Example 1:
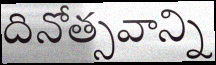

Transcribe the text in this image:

దినోత్సవాన్ని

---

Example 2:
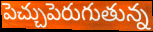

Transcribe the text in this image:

పెచ్చుపెరుగుతున్న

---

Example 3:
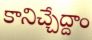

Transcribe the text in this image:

కానిచ్చేద్దాం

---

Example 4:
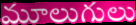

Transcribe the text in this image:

మూలుగులు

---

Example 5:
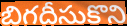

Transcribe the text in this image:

బిగదీసుకొని